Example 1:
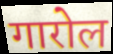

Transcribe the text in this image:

गारोल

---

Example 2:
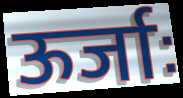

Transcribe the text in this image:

ऊर्जाः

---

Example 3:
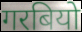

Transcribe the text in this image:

गरबियो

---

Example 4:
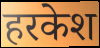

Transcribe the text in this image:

हरकेश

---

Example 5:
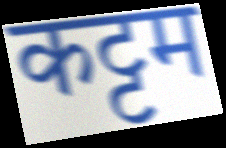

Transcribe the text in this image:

कट्टम